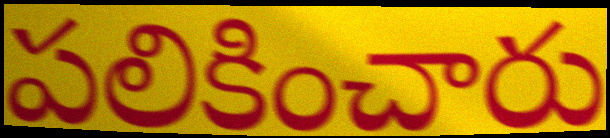
పలికించారు